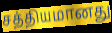
சத்தியமானது